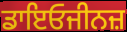
ਡਾਇਓਜੀਨਜ਼